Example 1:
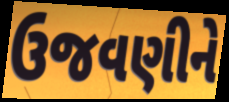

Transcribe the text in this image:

ઉજવણીને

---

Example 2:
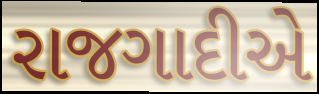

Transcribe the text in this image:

રાજગાદીએ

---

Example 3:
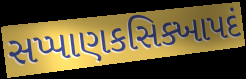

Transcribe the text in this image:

સપ્પાણકસિક્ખાપદં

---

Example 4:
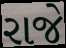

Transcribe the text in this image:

રાજે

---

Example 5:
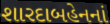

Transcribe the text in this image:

શારદાબહેનનાં